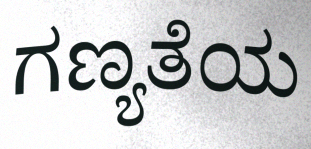
ಗಣ್ಯತೆಯ